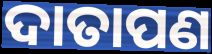
ଦାତାପଣ